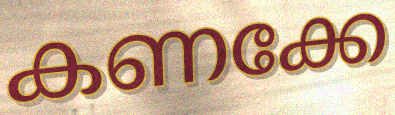
കണക്കേ